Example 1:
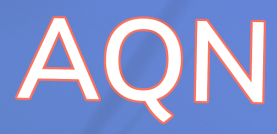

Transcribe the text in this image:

AQN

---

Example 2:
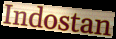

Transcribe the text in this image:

Indostan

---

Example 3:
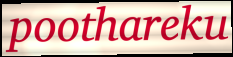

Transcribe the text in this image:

poothareku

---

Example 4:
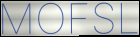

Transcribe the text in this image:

MOFSL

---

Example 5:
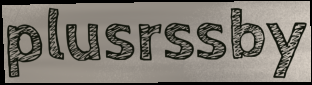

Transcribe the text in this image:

plusrssby